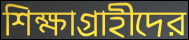
শিক্ষাগ্রাহীদের